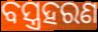
ବସ୍ତ୍ରହରଣ